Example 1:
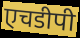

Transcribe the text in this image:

एचडीपी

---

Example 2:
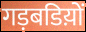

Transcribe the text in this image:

गड़बडिय़ों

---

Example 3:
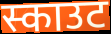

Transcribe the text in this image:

स्काउट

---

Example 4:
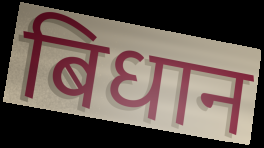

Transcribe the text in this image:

बिधान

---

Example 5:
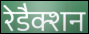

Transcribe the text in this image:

रेडैक्शन